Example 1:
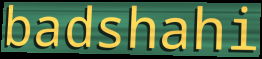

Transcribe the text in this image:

badshahi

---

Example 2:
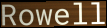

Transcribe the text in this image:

Rowell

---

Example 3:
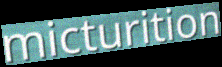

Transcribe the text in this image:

micturition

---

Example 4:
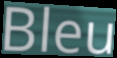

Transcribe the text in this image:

Bleu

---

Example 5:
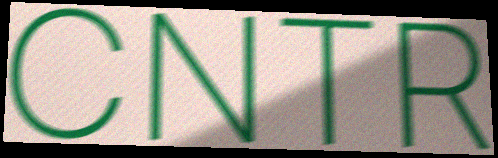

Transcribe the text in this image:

CNTR